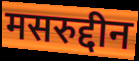
मसरुद्दीन